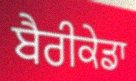
ਬੈਰੀਕੇਡਾ